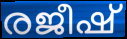
രജീഷ്